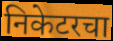
निकेटरचा